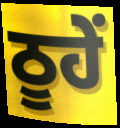
ਠੂਹੇਂ